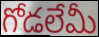
గోడలేమీ